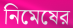
নিমেষের